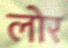
लोर